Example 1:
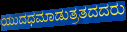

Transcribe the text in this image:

ಯುದಧಮಾಡುತ್ರತದದರು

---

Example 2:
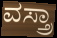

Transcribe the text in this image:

ವಸ್ತ್ರಾ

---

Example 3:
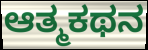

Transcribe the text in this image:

ಆತ್ಮಕಥನ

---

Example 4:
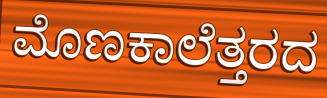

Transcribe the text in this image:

ಮೊಣಕಾಲೆತ್ತರದ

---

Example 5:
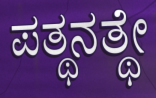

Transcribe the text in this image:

ಪತ್ಥನತ್ಥೇ